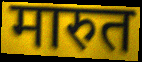
मारुत